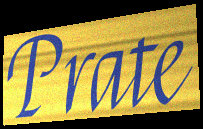
Prate